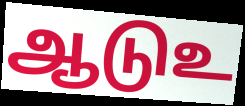
ஆடுஉ